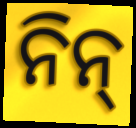
ନିନ୍